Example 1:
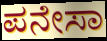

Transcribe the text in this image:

ಪನೇಸಾ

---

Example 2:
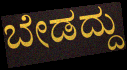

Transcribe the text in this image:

ಬೇಡದ್ದು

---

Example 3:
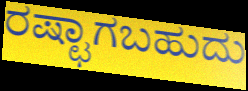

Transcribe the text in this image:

ರಷ್ಟಾಗಬಹುದು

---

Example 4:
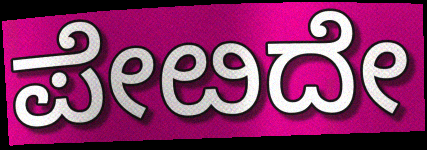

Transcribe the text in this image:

ಪೇೞದೇ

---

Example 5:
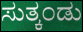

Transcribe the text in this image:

ಸುತ್ಕಂಡು